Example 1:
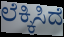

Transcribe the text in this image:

ಲೆಕ್ಕಿಸಿದೆ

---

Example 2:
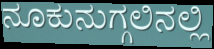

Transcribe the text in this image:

ನೂಕುನುಗ್ಗಲಿನಲ್ಲಿ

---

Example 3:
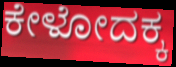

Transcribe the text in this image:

ಕೇಳೋದಕ್ಕ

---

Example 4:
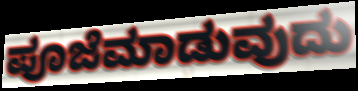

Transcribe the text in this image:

ಪೂಜೆಮಾಡುವುದು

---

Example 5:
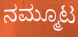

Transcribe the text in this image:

ನಮ್ಮೂಟ